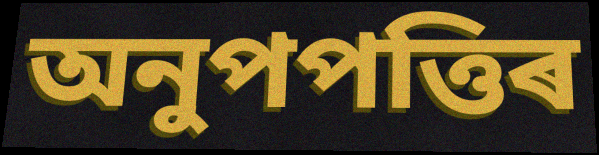
অনুপপত্তিৰ